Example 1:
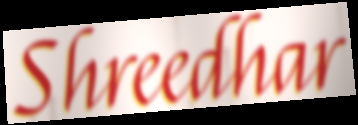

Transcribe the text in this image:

Shreedhar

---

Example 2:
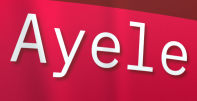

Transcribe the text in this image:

Ayele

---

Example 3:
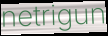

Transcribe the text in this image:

netrigun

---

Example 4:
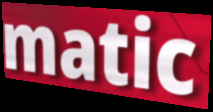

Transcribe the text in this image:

matic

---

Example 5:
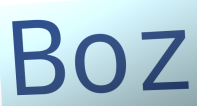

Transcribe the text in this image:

Boz